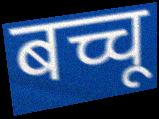
बच्चू